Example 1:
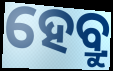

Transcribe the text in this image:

ହେବ୍ରୁ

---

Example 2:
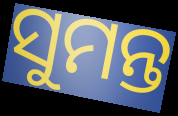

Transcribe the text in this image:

ସୁମନ୍ତ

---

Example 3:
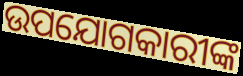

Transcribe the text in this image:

ଉପଯୋଗକାରୀଙ୍କ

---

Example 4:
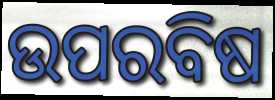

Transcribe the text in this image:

ଉପରବିଷ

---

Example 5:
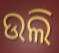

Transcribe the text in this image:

ଉଲି